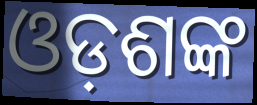
ଓଡ଼ଶଙ୍କ